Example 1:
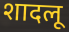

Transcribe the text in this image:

शादलू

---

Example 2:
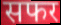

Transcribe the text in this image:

सफर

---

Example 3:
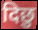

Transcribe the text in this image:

दिछु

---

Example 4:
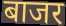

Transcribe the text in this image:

बाजर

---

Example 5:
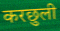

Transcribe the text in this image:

करछुली